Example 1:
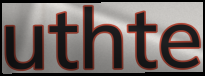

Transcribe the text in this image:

uthte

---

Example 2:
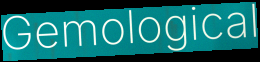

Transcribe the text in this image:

Gemological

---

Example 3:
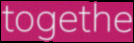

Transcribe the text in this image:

togethe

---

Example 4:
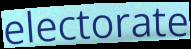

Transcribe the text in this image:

electorate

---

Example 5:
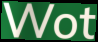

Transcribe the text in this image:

Wot